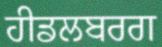
ਹੀਡਲਬਰਗ